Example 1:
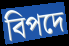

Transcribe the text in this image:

বিপদে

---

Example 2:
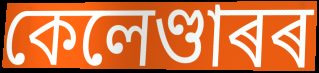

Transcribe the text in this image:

কেলেণ্ডাৰৰ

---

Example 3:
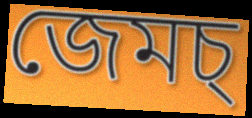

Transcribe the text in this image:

জেমচ্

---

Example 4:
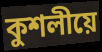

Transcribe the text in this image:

কুশলীয়ে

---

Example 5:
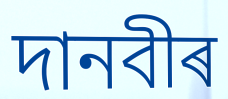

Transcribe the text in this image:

দানবীৰ